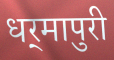
धर्मापुरी